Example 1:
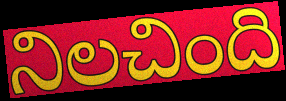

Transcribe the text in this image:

నిలచింది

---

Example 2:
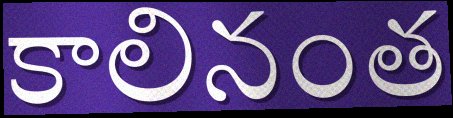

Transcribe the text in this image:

కాలినంత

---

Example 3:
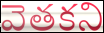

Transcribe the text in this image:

వెతకని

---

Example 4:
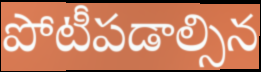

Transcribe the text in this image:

పోటీపడాల్సిన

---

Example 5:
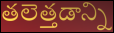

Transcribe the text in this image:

తలెత్తడాన్ని